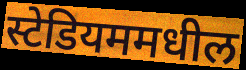
स्टेडियममधील